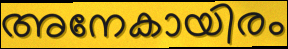
അനേകായിരം